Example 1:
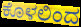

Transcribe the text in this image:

ಕೊಳಲಿಂದ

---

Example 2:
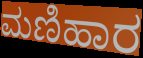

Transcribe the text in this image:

ಮಣಿಹಾರ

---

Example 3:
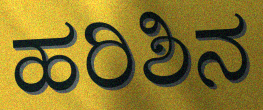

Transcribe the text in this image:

ಹರಿಶಿನ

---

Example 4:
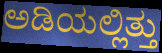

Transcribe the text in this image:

ಅಡಿಯಲ್ಲಿತ್ತು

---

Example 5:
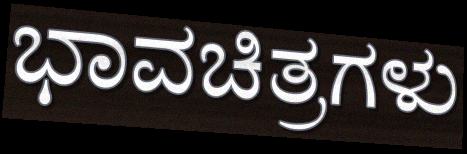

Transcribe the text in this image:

ಭಾವಚಿತ್ರಗಳು